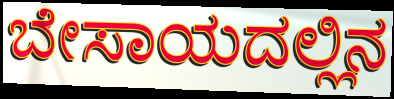
ಬೇಸಾಯದಲ್ಲಿನ